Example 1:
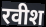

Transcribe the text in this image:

रवीश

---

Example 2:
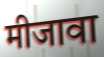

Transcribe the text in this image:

मीजावा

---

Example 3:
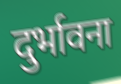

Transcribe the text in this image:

दुर्भावना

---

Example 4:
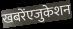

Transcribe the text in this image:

खबरेंएजुकेशन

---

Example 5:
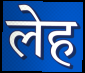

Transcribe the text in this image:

लेह